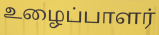
உழைப்பாளர்